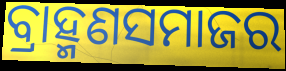
ବ୍ରାହ୍ମଣସମାଜର